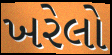
ખરેલો